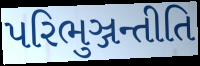
પરિભુઞ્જન્તીતિ